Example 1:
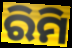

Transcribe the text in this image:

ରିମି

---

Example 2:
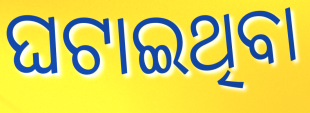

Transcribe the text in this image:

ଘଟାଇଥିବା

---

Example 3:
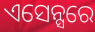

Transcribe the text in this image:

ଏସେନ୍ସରେ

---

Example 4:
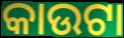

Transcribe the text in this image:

କାଉଟା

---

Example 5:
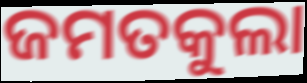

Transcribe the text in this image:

ଜମତକୁଲା